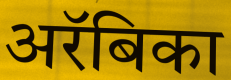
अरॅबिका